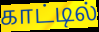
காட்டில்